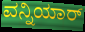
ವನ್ನಿಯಾರ್